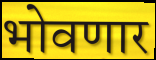
भोवणार